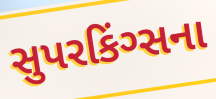
સુપરકિંગ્સના